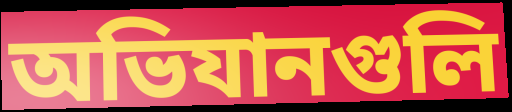
অভিযানগুলি